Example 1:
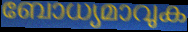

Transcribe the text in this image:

ബോധ്യമാവുക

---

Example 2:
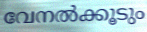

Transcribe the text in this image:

വേനൽക്കൂടും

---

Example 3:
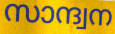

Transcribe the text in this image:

സാന്ദ്വന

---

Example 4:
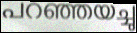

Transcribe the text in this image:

പറഞ്ഞയച്ചു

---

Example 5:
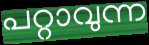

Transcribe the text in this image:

പറ്റാവുന്ന